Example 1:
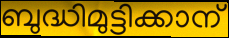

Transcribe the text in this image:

ബുദ്ധിമുട്ടിക്കാന്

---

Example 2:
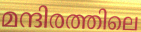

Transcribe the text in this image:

മന്ദിരത്തിലെ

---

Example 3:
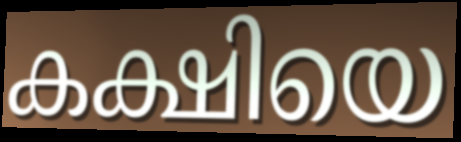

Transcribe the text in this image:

കക്ഷിയെ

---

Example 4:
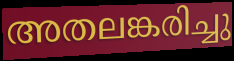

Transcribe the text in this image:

അതലങ്കരിച്ചു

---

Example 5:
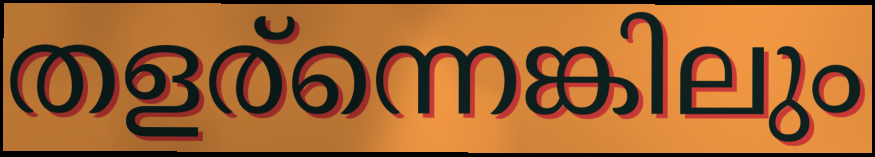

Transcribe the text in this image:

തളര്ന്നെങ്കിലും